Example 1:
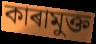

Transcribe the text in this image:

কাৰামুক্ত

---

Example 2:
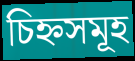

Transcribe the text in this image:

চিহ্নসমূহ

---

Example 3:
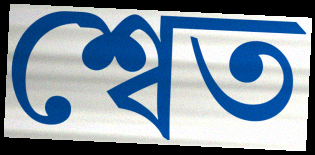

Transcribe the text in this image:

শ্বেত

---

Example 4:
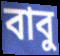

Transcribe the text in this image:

বাবু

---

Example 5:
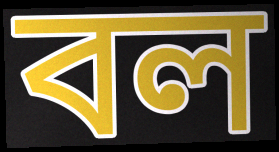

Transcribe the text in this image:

বল